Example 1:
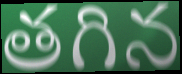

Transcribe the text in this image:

తగిన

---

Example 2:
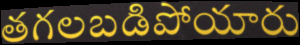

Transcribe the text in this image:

తగలబడిపోయారు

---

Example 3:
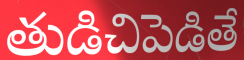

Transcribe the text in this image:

తుడిచిపెడితే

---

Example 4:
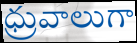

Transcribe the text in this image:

ధ్రువాలుగా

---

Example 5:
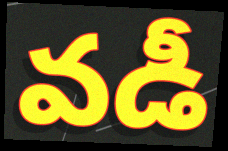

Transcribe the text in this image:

వడీ